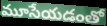
మూసేయడంతో